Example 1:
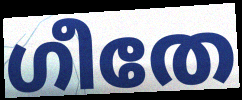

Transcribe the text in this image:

ഗീതേ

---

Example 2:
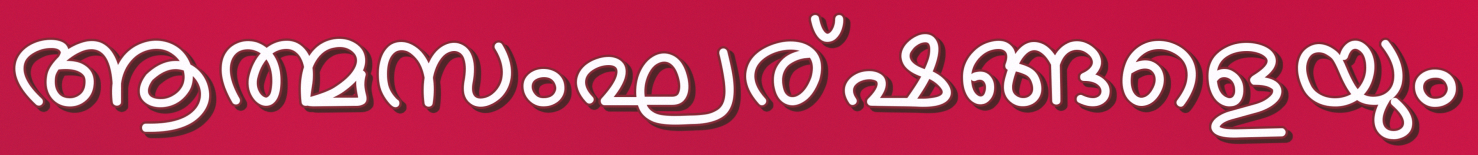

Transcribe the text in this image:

ആത്മസംഘര്ഷങ്ങളെയും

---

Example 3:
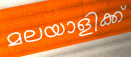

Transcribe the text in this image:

മലയാളിക്ക്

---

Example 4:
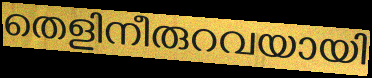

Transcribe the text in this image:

തെളിനീരുറവയായി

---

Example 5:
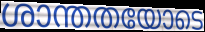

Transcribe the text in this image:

ശാന്തതയോടെ